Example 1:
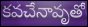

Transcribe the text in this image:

కవచేనావృతో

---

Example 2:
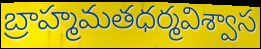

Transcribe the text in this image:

బ్రాహ్మమతధర్మవిశ్వాస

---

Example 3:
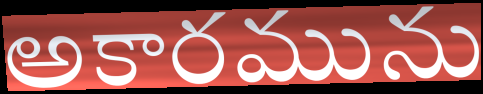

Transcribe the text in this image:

అకారమును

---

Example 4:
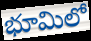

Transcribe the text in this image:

భూమిలో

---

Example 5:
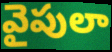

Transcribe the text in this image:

వైపులా